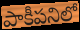
పాకీపనిలో